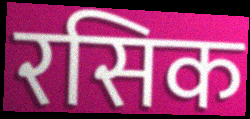
रसिक